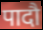
पादौ